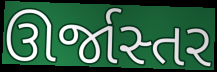
ઊર્જાસ્તર